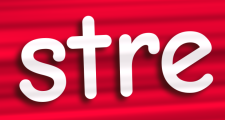
stre